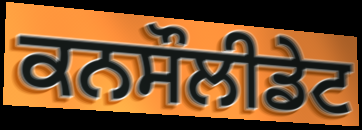
ਕਨਸੌਲੀਡੇਟ